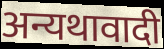
अन्यथावादी